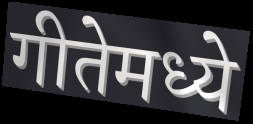
गीतेमध्ये